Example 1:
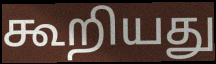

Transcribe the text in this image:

கூறியது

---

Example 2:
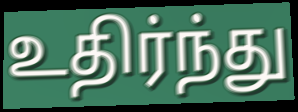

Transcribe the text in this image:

உதிர்ந்து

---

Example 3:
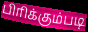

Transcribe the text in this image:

பிரிக்கும்படி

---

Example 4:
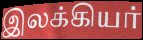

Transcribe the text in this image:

இலக்கியர்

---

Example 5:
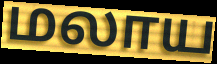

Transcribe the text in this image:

மலாய